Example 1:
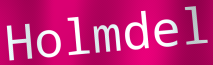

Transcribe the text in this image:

Holmdel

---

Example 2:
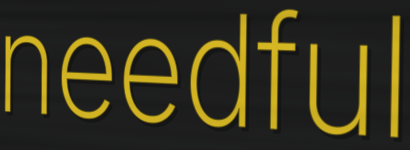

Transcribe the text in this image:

needful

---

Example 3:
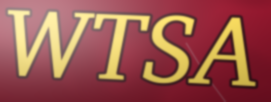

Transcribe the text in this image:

WTSA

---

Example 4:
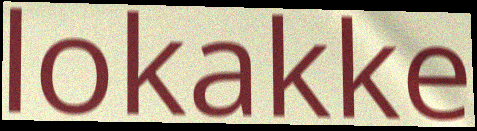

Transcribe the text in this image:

lokakke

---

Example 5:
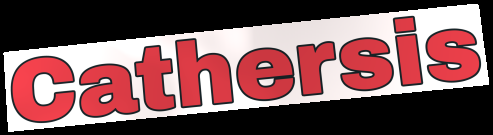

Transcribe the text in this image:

Cathersis